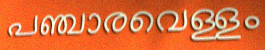
പഞ്ചാരവെള്ളം